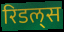
रिडल्स